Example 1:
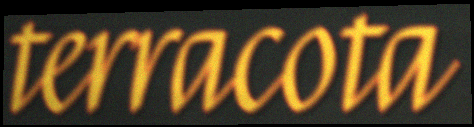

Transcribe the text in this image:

terracota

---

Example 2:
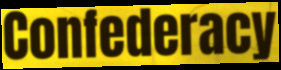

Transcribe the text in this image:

Confederacy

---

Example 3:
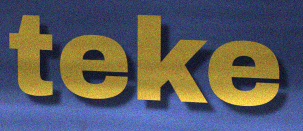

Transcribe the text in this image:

teke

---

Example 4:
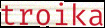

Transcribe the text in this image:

troika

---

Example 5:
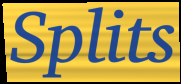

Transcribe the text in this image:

Splits